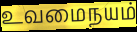
உவமைநயம்